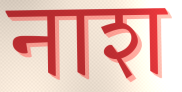
नाश